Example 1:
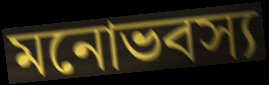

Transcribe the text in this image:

মনোভবস্য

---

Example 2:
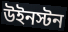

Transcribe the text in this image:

উইনস্টন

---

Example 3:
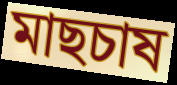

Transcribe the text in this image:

মাছচাষ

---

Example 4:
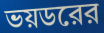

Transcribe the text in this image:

ভয়ডরের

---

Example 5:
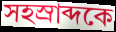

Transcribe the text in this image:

সহস্রাব্দকে